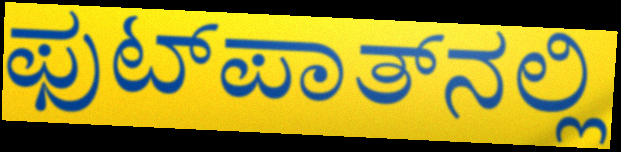
ಫುಟ್‌ಪಾತ್‌ನಲ್ಲಿ